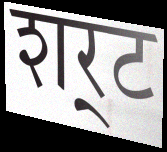
शर्ट